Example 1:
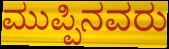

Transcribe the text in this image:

ಮುಪ್ಪಿನವರು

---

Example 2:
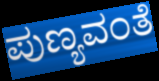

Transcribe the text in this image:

ಪುಣ್ಯವಂತೆ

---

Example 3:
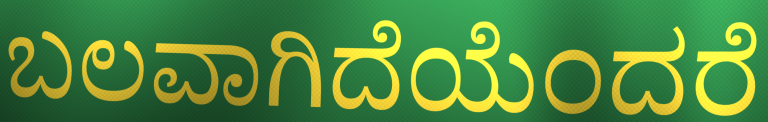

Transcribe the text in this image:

ಬಲವಾಗಿದೆಯೆಂದರೆ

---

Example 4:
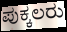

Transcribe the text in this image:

ಪುಕ್ಕಲರು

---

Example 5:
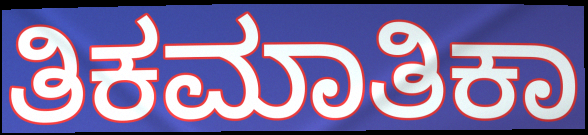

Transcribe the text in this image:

ತಿಕಮಾತಿಕಾ